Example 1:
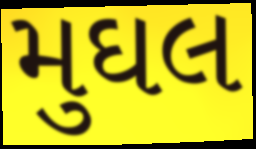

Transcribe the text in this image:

મુઘલ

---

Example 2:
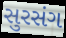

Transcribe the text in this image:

સુરસંગ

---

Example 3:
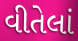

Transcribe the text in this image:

વીતેલાં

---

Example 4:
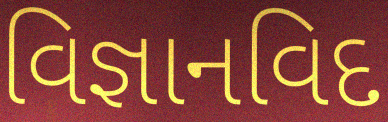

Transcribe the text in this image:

વિજ્ઞાનવિદ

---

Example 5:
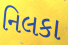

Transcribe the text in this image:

નિલકા